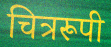
चित्ररूपी